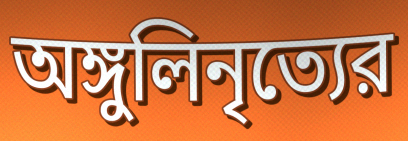
অঙ্গুলিনৃত্যের